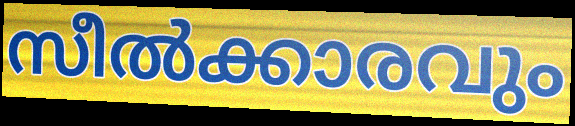
സീൽക്കാരവും